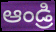
ఆండ్రి